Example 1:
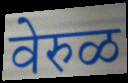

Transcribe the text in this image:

वेरुळ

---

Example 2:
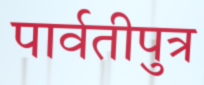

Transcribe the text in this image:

पार्वतीपुत्र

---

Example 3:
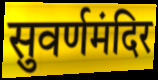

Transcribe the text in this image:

सुवर्णमंदिर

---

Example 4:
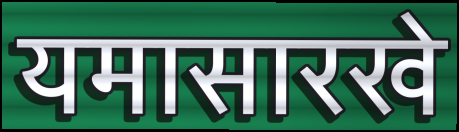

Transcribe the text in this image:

यमासारखे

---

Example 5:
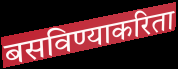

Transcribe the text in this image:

बसविण्याकरिता